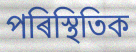
পৰিস্থিতিক